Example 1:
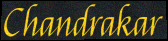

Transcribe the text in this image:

Chandrakar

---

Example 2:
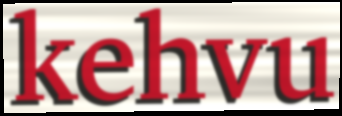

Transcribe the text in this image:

kehvu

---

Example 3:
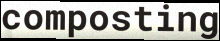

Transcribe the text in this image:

composting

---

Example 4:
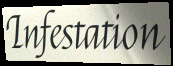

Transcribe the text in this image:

Infestation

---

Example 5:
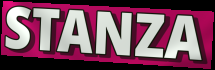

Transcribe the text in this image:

STANZA